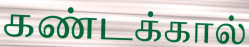
கண்டக்கால்